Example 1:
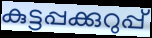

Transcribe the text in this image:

കുട്ടപ്പക്കുറുപ്പ്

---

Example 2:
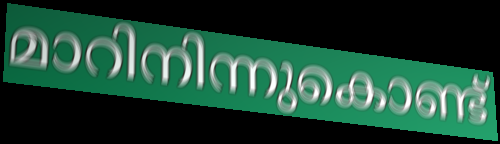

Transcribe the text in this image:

മാറിനിന്നുകൊണ്ട്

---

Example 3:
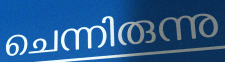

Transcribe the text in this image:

ചെന്നിരുന്നു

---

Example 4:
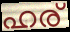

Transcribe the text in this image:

ഹര്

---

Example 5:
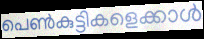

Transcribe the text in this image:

പെൺകുട്ടികളെക്കാൾ